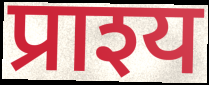
प्राश्य